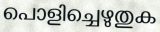
പൊളിച്ചെഴുതുക